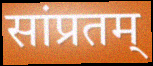
सांप्रतम्